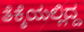
ತೆಕ್ಕೆಯಲ್ಲಿದ್ದ